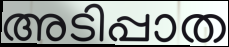
അടിപ്പാത